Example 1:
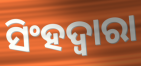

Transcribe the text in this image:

ସିଂହଦ୍ୱାରା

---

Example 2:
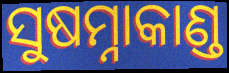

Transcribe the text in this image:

ସୁଷମ୍ନାକାଣ୍ଡ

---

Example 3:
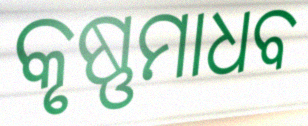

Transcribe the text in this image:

କୃଷ୍ଣମାଧବ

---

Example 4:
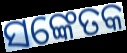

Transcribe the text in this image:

ସଙ୍କେତକ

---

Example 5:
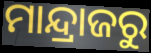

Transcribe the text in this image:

ମାନ୍ଦ୍ରାଜରୁ